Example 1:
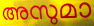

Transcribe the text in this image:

അസുമാ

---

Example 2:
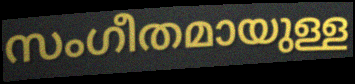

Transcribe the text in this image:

സംഗീതമായുള്ള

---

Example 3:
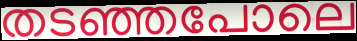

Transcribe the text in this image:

തടഞ്ഞപോലെ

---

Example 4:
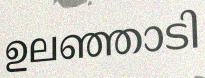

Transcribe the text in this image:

ഉലഞ്ഞാടി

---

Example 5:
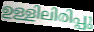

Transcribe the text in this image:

ഉള്ളിലിരിപ്പു